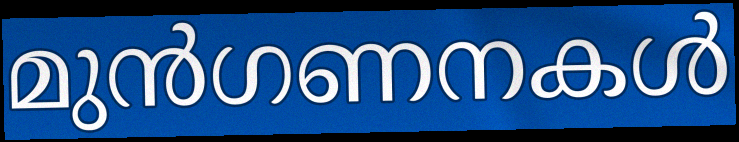
മുൻഗണനകൾ